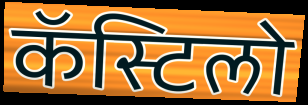
कॅस्टिलो